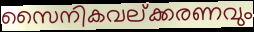
സൈനികവല്ക്കരണവും